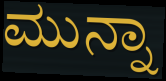
ಮುನ್ನಾ